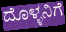
ದೊಳ್ಳನಿಗೆ